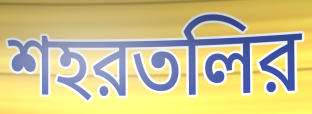
শহরতলির